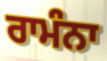
ਰਾਮੰਨਾ